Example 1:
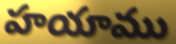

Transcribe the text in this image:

హయాము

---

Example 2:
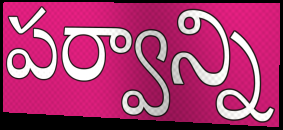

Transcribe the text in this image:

పర్వాన్ని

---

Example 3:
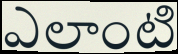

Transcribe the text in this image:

ఎలాంటి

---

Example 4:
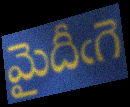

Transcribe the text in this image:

మైదీఁగె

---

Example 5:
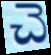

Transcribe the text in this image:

చె